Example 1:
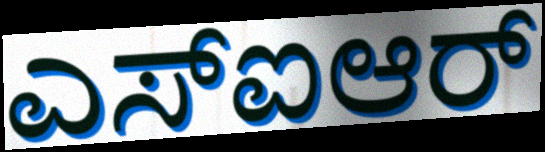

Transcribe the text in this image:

ಎಸ್ಐಆರ್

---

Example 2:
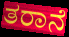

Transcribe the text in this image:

ತರಾನೆ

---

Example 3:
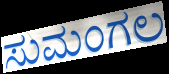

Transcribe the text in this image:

ಸುಮಂಗಲ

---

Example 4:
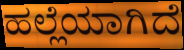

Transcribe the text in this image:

ಹಲ್ಲೆಯಾಗಿದೆ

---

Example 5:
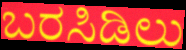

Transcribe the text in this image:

ಬರಸಿಡಿಲು